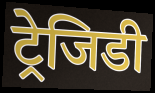
ट्रेजिडी